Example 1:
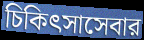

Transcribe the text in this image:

চিকিৎসাসেবার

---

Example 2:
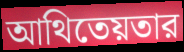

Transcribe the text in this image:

আথিতেয়তার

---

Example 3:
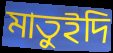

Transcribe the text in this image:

মাতুইদি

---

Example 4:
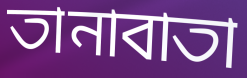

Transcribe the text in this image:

তানাবাতা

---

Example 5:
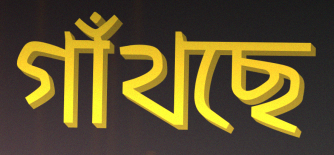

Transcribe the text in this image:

গাঁথছে